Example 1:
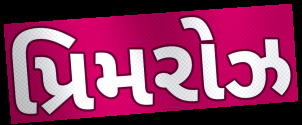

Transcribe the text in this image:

પ્રિમરોઝ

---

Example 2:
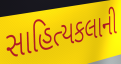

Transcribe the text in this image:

સાહિત્યકલાની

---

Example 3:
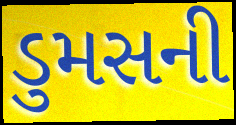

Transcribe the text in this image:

ડુમસની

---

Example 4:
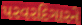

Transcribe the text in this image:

પરવરદિગારને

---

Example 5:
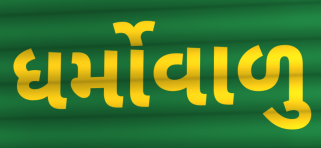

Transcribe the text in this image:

ધર્મોવાળુ